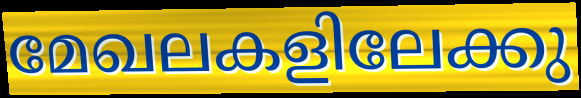
മേഖലകളിലേക്കു